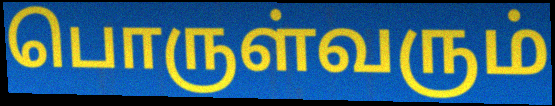
பொருள்வரும்